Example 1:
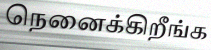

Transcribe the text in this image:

நெனைக்கிறீங்க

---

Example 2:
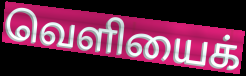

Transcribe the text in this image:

வெளியைக்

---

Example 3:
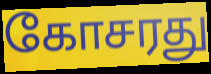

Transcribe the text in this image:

கோசரது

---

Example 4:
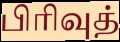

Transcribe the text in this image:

பிரிவுத்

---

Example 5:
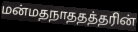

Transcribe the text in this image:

மன்மதநாததத்தரின்